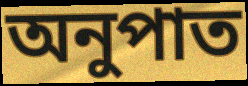
অনুপাত